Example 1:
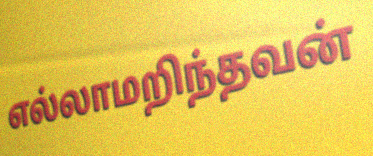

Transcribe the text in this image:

எல்லாமறிந்தவன்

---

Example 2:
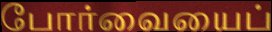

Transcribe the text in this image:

போர்வையைப்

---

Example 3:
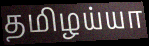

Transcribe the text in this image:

தமிழய்யா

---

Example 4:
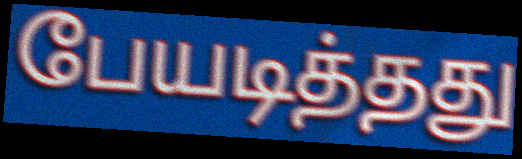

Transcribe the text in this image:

பேயடித்தது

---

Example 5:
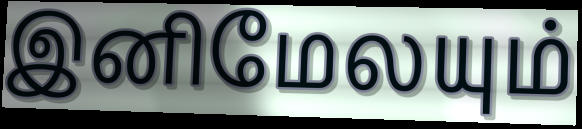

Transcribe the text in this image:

இனிமேலயும்